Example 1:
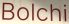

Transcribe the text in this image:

Bolchi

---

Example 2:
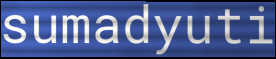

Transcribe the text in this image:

sumadyuti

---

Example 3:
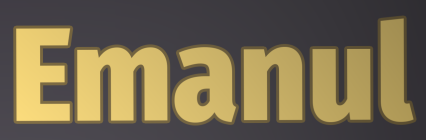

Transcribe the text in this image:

Emanul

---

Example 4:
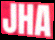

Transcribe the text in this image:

JHA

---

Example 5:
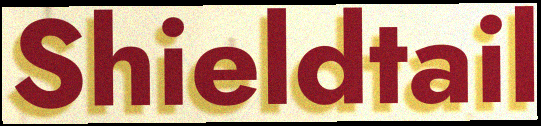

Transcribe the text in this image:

Shieldtail